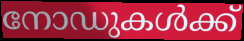
നോഡുകൾക്ക്